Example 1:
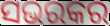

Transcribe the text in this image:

ସଭରକର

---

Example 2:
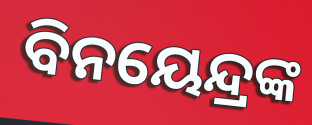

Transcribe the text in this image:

ବିନୟେନ୍ଦ୍ରଙ୍କ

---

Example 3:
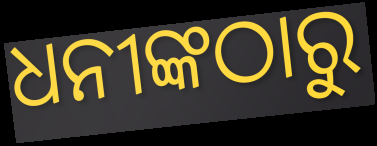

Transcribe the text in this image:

ଧନୀଙ୍କଠାରୁ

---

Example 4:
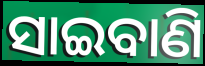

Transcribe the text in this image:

ସାଇବାଣି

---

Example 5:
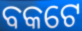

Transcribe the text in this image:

ବକଟେ